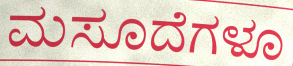
ಮಸೂದೆಗಳೂ